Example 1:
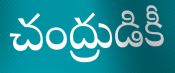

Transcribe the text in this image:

చంద్రుడికీ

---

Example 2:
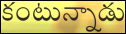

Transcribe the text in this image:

కంటున్నాడు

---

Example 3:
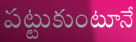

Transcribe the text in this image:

పట్టుకుంటూనే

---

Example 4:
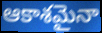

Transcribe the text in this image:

ఆకాశమైనా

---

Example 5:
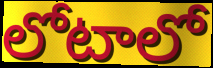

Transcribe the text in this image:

లోటాలో